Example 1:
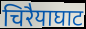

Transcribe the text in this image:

चिरैयाघाट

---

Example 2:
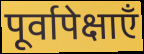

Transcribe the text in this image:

पूर्वापेक्षाएँ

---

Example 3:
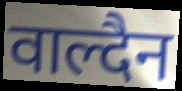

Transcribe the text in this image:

वाल्दैन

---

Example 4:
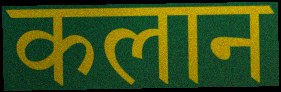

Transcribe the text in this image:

कलान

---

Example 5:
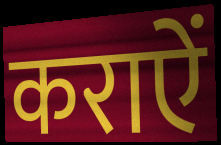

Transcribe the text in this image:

कराऐं